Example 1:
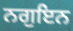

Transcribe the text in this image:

ਨਗੁਇਨ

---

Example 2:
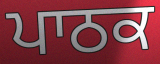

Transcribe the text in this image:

ਪਾਠਕ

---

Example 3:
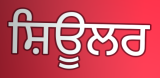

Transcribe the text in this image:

ਸ਼ਿਊਲਰ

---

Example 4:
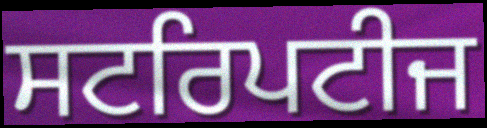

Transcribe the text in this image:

ਸਟਰਿਪਟੀਜ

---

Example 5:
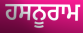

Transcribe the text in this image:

ਹਸਨੂਰਾਮ